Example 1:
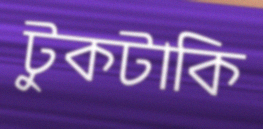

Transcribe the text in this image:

টুকটাকি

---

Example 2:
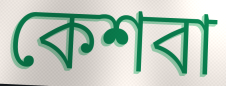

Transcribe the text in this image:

কেশবা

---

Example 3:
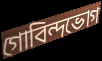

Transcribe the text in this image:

গোবিন্দভোগ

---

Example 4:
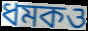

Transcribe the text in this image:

ধমকও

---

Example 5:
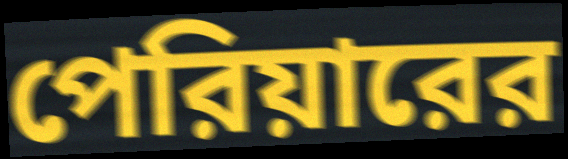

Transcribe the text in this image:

পেরিয়ারের